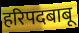
हरिपदबाबू